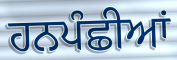
ਹਨਪੰਛੀਆਂ